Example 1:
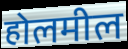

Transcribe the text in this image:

होलमील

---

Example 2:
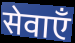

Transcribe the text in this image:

सेवाएँ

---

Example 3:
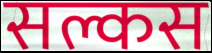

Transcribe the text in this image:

सल्कस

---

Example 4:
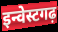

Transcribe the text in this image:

इन्वेस्टगढ़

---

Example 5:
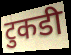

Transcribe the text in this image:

टुकडी